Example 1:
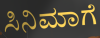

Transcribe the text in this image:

ಸಿನಿಮಾಗೆ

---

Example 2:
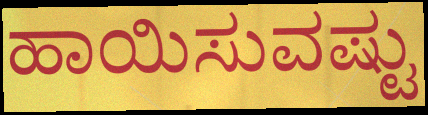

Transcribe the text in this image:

ಹಾಯಿಸುವಷ್ಟು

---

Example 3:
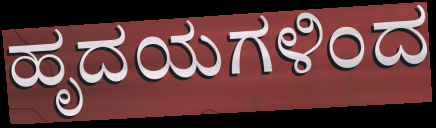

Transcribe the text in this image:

ಹೃದಯಗಳಿಂದ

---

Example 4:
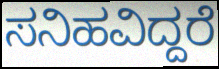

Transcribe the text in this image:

ಸನಿಹವಿದ್ದರೆ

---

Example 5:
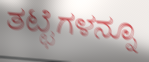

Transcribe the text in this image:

ತಟ್ಟೆಗಳನ್ನೂ